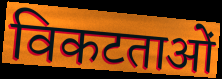
विकटताओं